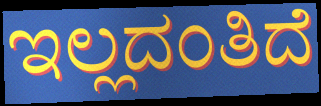
ಇಲ್ಲದಂತಿದೆ